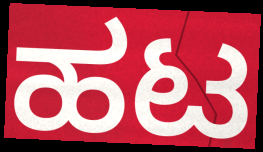
ಹಟ